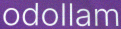
odollam